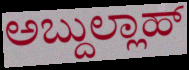
ಅಬ್ದುಲ್ಲಾಹ್